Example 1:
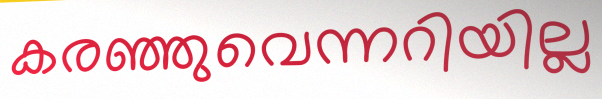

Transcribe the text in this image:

കരഞ്ഞുവെന്നറിയില്ല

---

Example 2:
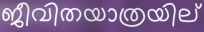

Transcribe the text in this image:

ജീവിതയാത്രയില്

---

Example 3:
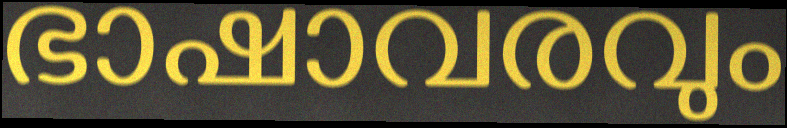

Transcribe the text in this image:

ഭാഷാവരവും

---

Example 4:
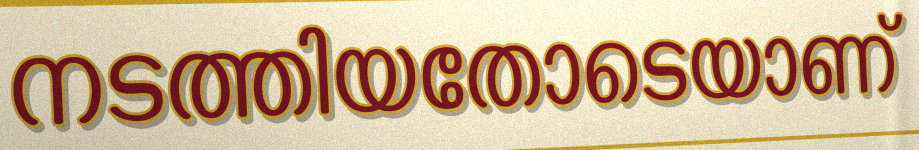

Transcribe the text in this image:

നടത്തിയതോടെയാണ്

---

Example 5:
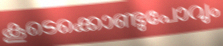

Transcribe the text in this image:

കൂടെക്കൊണ്ടുപോവും